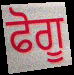
ਫੋਗੂ